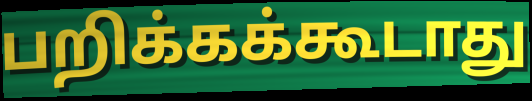
பறிக்கக்கூடாது